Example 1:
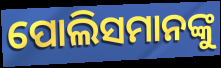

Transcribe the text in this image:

ପୋଲିସମାନଙ୍କୁ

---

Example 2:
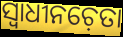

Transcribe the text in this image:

ସ୍ୱାଧୀନଚ଼େତା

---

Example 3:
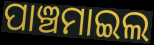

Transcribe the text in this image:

ପାଞ୍ଚମାଇଲ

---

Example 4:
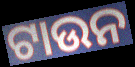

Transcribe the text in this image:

ଟାଉନ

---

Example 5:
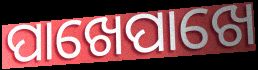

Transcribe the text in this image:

ପାଖେପାଖେ